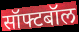
सॉफ्टबॉल